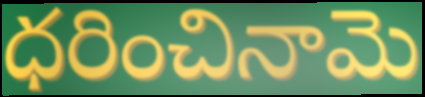
ధరించినామె